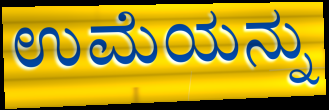
ಉಮೆಯನ್ನು